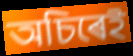
অচিৰেই